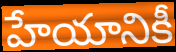
హేయానికీ